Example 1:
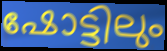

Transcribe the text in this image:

ഷോട്ടിലും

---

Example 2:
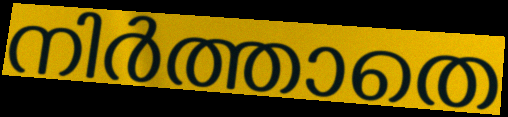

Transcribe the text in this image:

നിർത്താതെ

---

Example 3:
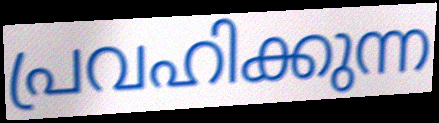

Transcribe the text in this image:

പ്രവഹിക്കുന്ന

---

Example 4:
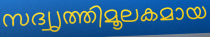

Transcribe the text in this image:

സദ്വൃത്തിമൂലകമായ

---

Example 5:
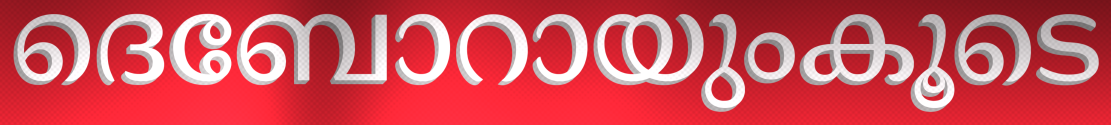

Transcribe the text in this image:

ദെബോറായുംകൂടെ